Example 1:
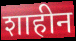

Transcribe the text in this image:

शाहीन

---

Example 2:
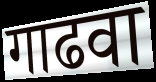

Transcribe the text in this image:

गाढवा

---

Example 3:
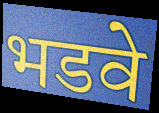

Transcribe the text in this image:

भडवे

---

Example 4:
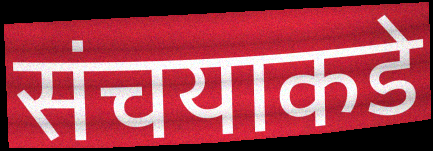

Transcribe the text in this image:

संचयाकडे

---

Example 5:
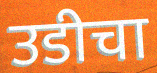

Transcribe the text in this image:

उडीचा